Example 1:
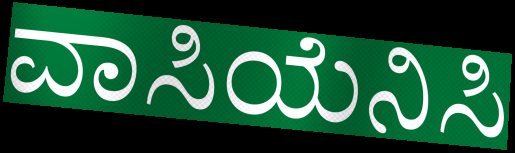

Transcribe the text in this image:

ವಾಸಿಯೆನಿಸಿ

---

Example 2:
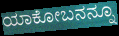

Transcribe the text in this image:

ಯಾಕೋಬನನ್ನೂ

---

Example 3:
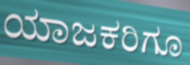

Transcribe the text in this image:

ಯಾಜಕರಿಗೂ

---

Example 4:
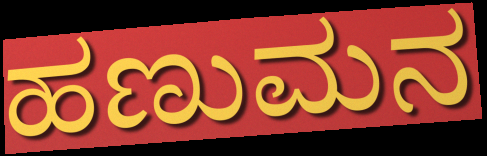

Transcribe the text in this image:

ಹಣುಮನ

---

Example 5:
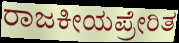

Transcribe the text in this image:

ರಾಜಕೀಯಪ್ರೇರಿತ